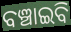
ବଞ୍ଚାଇବି